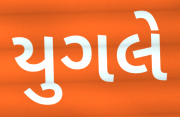
યુગલે